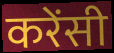
करेंसी